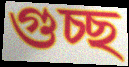
গুচ্ছ